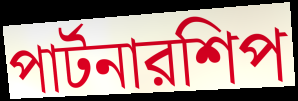
পার্টনারশিপ